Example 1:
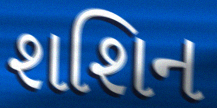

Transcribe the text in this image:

શશિન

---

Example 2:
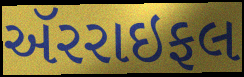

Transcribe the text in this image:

ઍરરાઇફલ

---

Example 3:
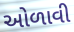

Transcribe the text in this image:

ઓળાવી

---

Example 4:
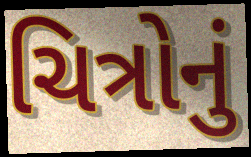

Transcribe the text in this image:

ચિત્રોનું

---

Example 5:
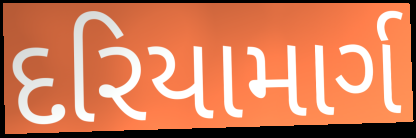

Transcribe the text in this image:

દરિયામાર્ગ